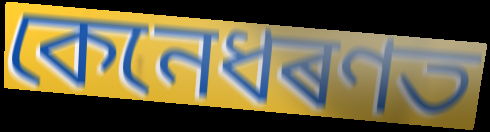
কেনেধৰণত